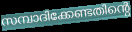
സമ്പാദിക്കേണ്ടതിന്റെ